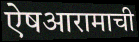
ऐषआरामाची